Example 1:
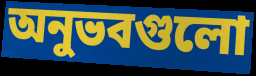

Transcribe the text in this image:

অনুভবগুলো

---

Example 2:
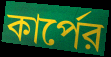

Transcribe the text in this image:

কার্পের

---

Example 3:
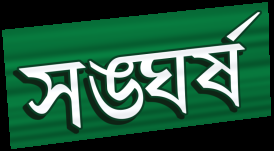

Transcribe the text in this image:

সঙ্ঘর্ষ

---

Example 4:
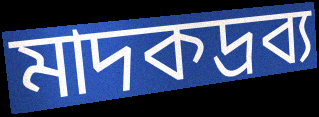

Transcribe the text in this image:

মাদকদ্রব্য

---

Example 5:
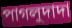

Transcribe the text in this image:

পাগলুদাদা